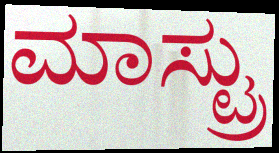
ಮಾಸ್ಟ್ರು